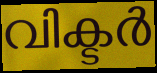
വിക്ടർ